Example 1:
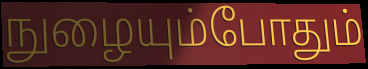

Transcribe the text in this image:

நுழையும்போதும்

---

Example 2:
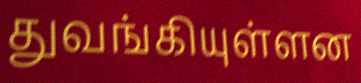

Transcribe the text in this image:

துவங்கியுள்ளன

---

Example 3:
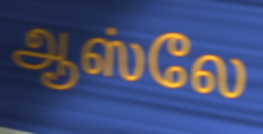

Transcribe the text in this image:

ஆஸ்லே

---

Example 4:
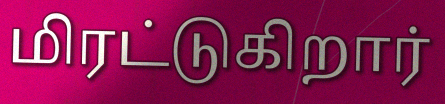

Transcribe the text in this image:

மிரட்டுகிறார்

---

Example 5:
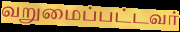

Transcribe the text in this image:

வறுமைப்பட்டவர்